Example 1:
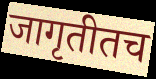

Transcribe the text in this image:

जागृतीतच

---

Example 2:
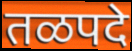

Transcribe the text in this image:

तळपदे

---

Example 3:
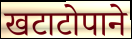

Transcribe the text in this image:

खटाटोपाने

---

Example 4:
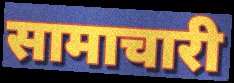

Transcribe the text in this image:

सामाचारी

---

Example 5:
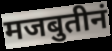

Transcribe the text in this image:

मजबुतीनं